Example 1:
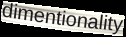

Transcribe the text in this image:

dimentionality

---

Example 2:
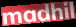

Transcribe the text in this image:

madhil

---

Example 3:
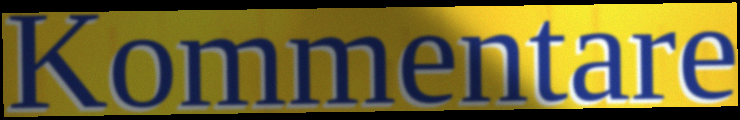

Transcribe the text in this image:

Kommentare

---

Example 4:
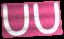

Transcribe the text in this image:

UU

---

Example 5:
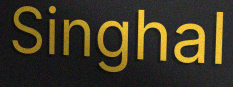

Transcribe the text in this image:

Singhal